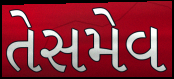
તેસમેવ